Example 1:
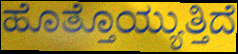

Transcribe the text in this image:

ಹೊತ್ತೊಯ್ಯುತ್ತಿದೆ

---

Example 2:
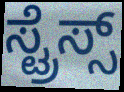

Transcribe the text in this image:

ಸ್ಟ್ರೆಸ್ಸ್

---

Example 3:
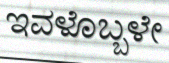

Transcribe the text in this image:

ಇವಳೊಬ್ಬಳೇ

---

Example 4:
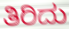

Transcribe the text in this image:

ತಿರಿದು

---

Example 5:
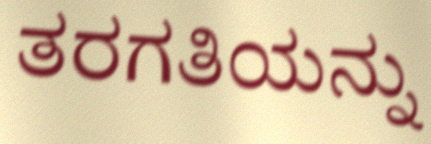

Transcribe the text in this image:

ತರಗತಿಯನ್ನು